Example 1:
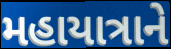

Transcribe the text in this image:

મહાયાત્રાને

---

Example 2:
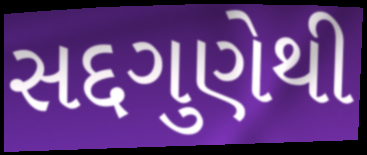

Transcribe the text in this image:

સદ્દગુણેથી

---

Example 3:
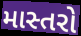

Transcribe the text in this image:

માસ્તરો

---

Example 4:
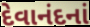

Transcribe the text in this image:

દેવાનંદનાં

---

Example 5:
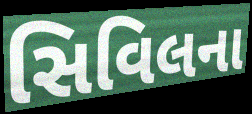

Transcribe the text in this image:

સિવિલના